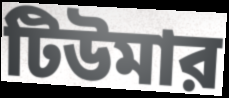
টিউমার